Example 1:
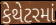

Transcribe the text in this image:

કેથેટરમાં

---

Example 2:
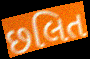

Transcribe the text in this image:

છલિત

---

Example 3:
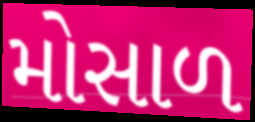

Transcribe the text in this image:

મોસાળ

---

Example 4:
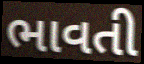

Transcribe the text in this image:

ભાવતી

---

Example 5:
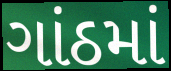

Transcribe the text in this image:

ગાંઠમાં